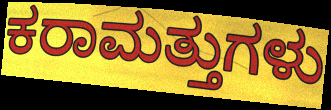
ಕರಾಮತ್ತುಗಳು